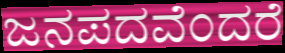
ಜನಪದವೆಂದರೆ